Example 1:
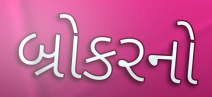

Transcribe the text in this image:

બ્રોકરનો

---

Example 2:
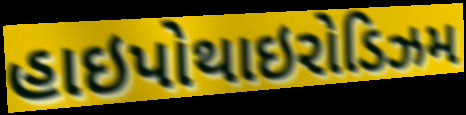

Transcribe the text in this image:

હાઇપોથાઇરોડિઝમ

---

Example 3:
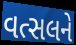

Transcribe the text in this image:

વત્સલને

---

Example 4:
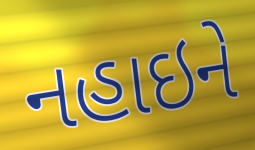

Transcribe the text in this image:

નહાઇને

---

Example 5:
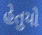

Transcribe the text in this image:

હેતુયો